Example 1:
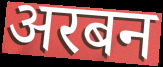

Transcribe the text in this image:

अरबन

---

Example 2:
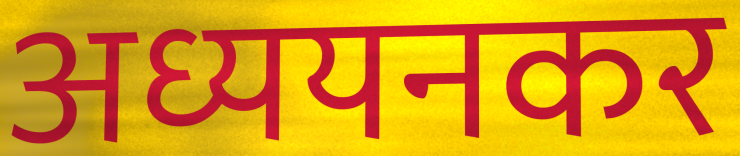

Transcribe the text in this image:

अध्ययनकर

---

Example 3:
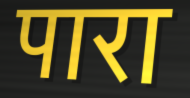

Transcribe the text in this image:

पारा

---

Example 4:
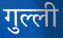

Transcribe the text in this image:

गुल्ली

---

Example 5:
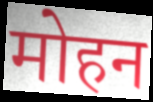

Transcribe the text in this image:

मोहन